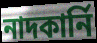
নাদকার্নি